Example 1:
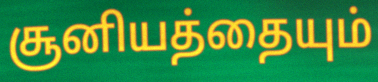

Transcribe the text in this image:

சூனியத்தையும்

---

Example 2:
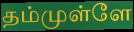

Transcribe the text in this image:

தம்முள்ளே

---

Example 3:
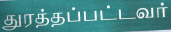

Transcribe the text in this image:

துரத்தப்பட்டவர்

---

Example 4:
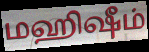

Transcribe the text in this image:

மஹிஷீம்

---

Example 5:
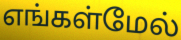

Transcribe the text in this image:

எங்கள்மேல்